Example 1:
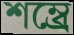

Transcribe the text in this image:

শম্ব্রে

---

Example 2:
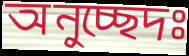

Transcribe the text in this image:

অনুচ্ছেদঃ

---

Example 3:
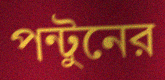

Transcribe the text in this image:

পন্টুনের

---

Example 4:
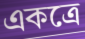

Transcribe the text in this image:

একত্রে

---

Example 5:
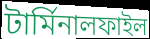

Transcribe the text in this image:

টার্মিনালফাইল